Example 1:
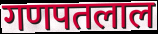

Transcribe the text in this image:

गणपतलाल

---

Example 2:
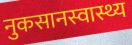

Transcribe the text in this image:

नुकसानस्वास्थ्य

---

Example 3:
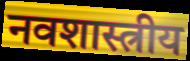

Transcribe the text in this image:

नवशास्त्रीय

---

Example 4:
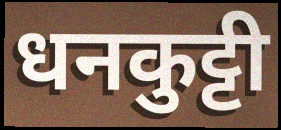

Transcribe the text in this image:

धनकुट्टी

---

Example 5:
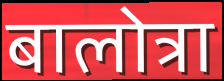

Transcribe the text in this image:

बालोत्रा